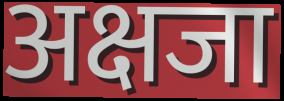
अक्षजा